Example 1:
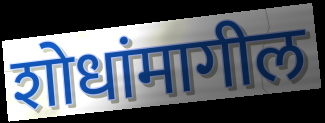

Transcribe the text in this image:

शोधांमागील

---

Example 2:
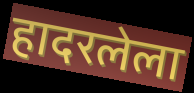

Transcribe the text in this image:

हादरलेला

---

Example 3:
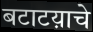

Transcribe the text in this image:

बटाटय़ाचे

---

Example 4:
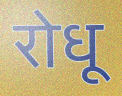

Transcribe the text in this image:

रोधू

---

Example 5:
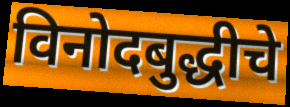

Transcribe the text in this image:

विनोदबुद्धीचे